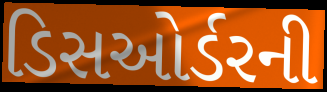
ડિસઓર્ડરની